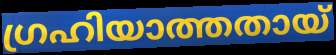
ഗ്രഹിയാത്തതായ്